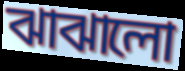
ঝাঝালো